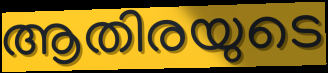
ആതിരയുടെ